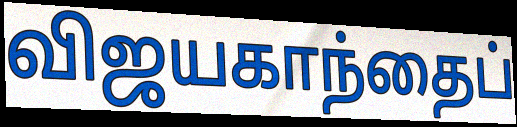
விஜயகாந்தைப்